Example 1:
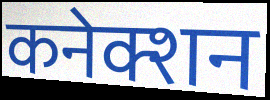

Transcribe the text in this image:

कनेक्शन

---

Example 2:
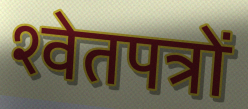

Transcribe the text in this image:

श्वेतपत्रों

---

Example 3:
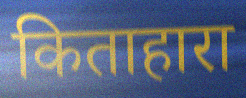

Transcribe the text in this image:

किताहारा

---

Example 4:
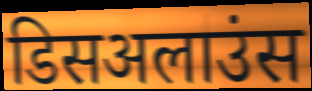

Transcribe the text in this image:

डिसअलाउंस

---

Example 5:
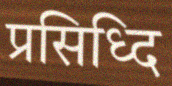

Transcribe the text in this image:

प्रसिध्दि